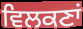
ਵਿਲਕਣਾਂ